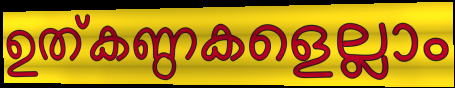
ഉത്കണ്ഠകളെല്ലാം